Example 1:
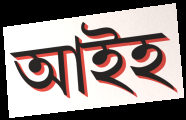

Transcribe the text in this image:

আইহ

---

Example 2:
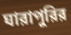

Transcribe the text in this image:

ঘারাপুরির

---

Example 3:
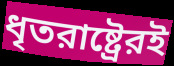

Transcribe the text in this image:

ধৃতরাষ্ট্রেরই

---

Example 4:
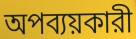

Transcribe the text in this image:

অপব্যয়কারী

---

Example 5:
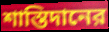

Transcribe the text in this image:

শাস্তিদানের